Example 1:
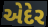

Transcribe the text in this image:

એદેર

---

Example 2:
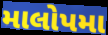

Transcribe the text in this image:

માલોપમા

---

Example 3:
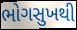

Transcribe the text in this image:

ભોગસુખથી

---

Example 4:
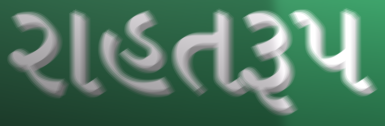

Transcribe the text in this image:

રાહતરૂપ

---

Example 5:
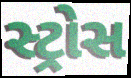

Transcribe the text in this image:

સ્ટ્રોસ